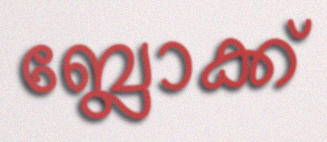
ബ്ലോക്ക്